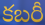
కబరీ